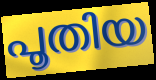
പൂതിയ